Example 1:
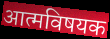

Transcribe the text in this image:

आत्मविषयक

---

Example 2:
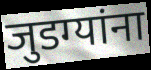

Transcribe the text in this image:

जुडग्यांना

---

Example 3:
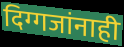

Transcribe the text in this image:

दिग्गजांनाही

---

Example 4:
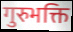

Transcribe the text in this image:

गुरुभक्ति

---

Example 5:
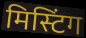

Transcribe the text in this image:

मिस्टिंग